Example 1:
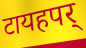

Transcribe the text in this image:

टायहपर्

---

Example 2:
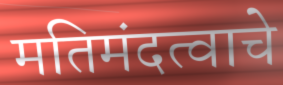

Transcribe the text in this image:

मतिमंदत्वाचे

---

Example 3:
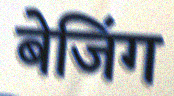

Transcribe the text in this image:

बेजिंग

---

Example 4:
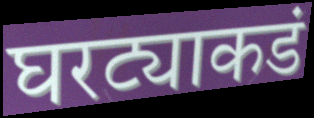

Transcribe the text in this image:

घरट्याकडं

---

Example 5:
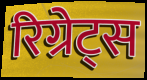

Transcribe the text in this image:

रिग्रेट्स